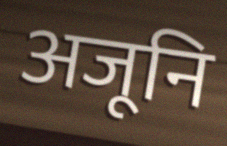
अजूनि